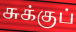
சுக்குப்